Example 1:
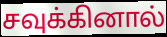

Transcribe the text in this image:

சவுக்கினால்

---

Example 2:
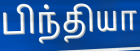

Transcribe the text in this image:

பிந்தியா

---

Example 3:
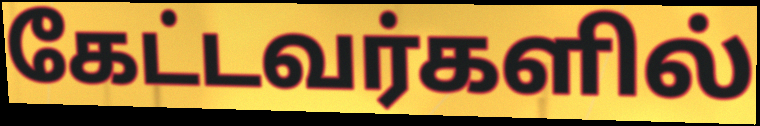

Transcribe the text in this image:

கேட்டவர்களில்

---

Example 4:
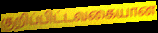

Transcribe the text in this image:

குறிப்பிட்டவகையான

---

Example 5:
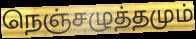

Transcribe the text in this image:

நெஞ்சழுத்தமும்